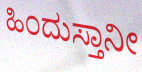
ಹಿಂದುಸ್ತಾನೀ